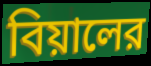
বিয়ালের